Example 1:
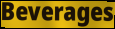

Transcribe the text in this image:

Beverages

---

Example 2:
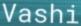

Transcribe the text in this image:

Vashi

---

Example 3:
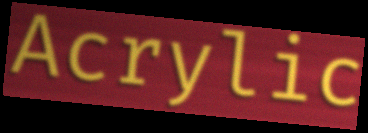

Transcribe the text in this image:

Acrylic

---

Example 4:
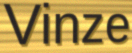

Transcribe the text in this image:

Vinze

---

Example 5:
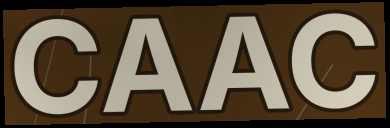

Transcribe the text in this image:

CAAC